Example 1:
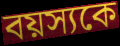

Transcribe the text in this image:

বয়স্যকে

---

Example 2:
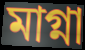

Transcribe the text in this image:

মাগ্না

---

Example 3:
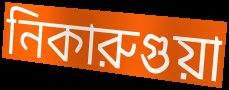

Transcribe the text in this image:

নিকারুগুয়া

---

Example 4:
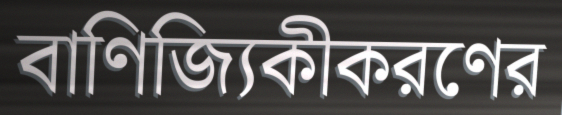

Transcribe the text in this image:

বাণিজ্যিকীকরণের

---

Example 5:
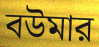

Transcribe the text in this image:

বউমার